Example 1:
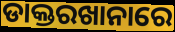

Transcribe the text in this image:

ଡାକ୍ତରଖାନାରେ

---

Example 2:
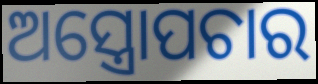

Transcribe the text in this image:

ଅସ୍ତ୍ରୋପଚାର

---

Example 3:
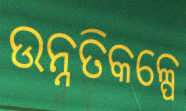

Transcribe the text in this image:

ଉନ୍ନତିକଳ୍ପେ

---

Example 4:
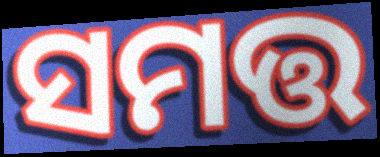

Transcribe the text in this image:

ସମତ୍ତ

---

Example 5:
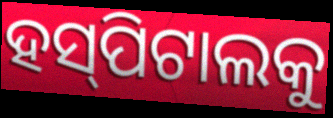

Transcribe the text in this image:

ହସ୍‌ପିଟାଲକୁ